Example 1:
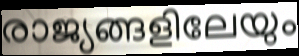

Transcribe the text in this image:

രാജ്യങ്ങളിലേയും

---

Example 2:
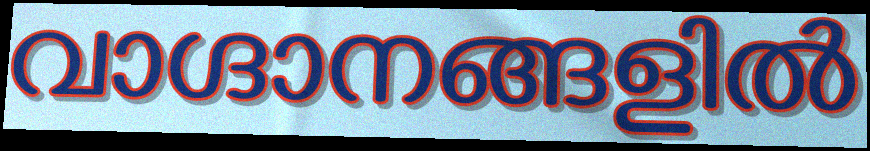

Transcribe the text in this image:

വാഗ്ദാനങ്ങളിൽ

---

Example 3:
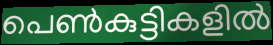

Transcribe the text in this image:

പെൺകുട്ടികളിൽ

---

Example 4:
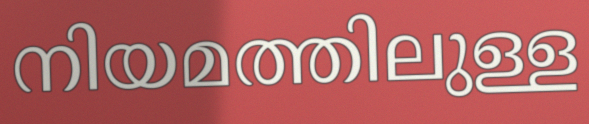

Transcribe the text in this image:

നിയമത്തിലുള്ള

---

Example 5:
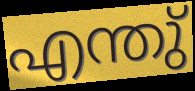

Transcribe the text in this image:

എന്തു്